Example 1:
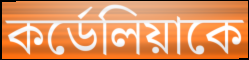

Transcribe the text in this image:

কর্ডেলিয়াকে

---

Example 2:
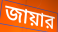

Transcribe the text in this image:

জায়ার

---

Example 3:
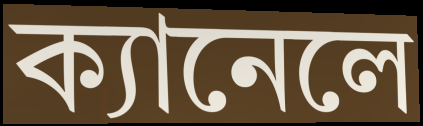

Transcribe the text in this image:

ক্যানেলে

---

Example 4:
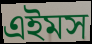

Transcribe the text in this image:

এইমস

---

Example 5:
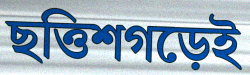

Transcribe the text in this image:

ছত্তিশগড়েই